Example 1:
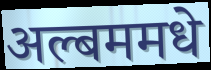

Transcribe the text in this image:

अल्बममधे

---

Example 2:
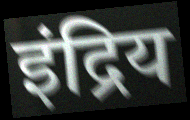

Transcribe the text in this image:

इंद्रिय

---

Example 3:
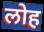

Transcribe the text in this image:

लोह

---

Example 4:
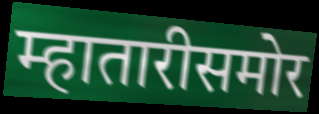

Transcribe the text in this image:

म्हातारीसमोर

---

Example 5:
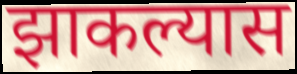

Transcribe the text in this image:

झाकल्यास